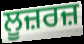
ਲੂਜ਼ਰਜ਼